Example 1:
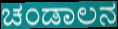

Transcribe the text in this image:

ಚಂಡಾಲನ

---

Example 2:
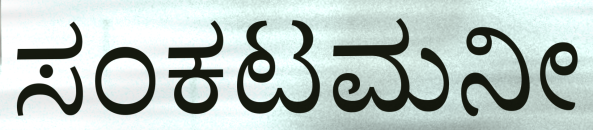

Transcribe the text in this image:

ಸಂಕಟಮನೀ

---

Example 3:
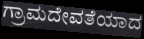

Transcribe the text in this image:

ಗ್ರಾಮದೇವತೆಯಾದ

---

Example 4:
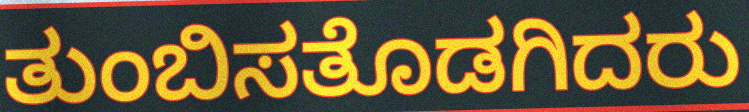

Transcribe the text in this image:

ತುಂಬಿಸತೊಡಗಿದರು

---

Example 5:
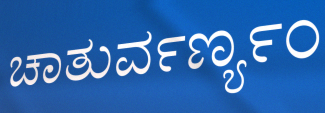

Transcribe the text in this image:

ಚಾತುರ್ವರ್ಣ್ಯಂ